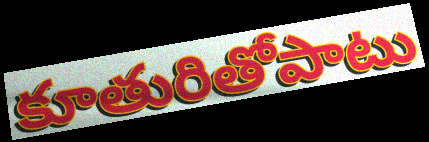
కూతురితోపాటు